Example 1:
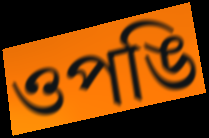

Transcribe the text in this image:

ওপঙি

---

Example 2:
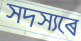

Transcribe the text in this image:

সদস্যৰে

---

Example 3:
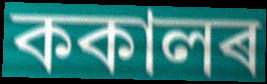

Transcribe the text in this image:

ককালৰ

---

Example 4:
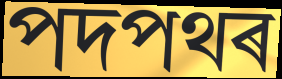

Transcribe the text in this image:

পদপথৰ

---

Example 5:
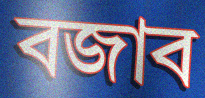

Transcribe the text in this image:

বজাব